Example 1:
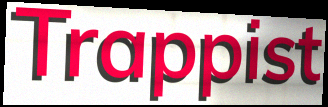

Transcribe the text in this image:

Trappist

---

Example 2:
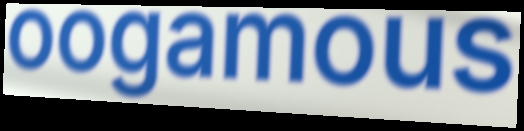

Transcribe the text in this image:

oogamous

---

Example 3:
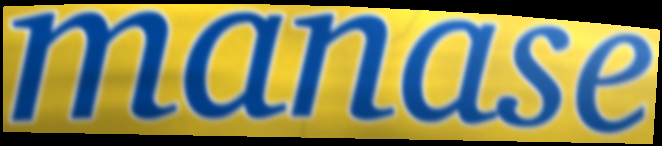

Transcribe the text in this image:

manase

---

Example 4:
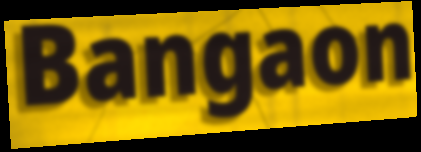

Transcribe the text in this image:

Bangaon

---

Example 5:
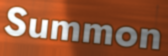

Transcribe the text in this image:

Summon